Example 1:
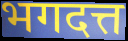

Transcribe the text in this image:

भगदत्त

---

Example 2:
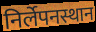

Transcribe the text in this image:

निर्लेपनस्थान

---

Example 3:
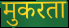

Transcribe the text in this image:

मुकरता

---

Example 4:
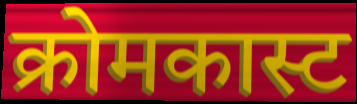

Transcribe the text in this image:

क्रोमकास्ट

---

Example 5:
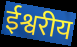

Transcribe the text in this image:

ईश्वरीय